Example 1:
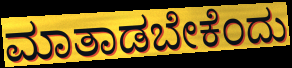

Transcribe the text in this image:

ಮಾತಾಡಬೇಕೆಂದು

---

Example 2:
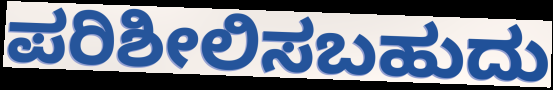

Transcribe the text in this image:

ಪರಿಶೀಲಿಸಬಹುದು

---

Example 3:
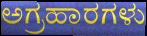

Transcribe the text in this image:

ಅಗ್ರಹಾರಗಳು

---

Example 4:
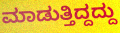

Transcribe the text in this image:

ಮಾಡುತ್ತಿದ್ದದ್ದು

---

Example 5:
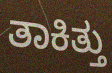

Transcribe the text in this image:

ತಾಕಿತ್ತು